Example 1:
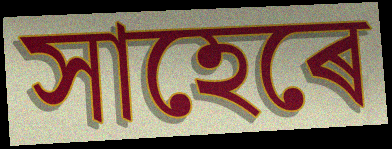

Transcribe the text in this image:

সাহেৰে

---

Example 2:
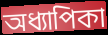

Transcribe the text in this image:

অধ্যাপিকা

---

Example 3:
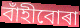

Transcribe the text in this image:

বাঁহীবোৰা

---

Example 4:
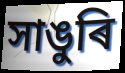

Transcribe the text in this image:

সাঙুৰি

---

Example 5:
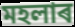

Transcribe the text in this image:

মহলাৰ